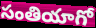
సంతియాగో